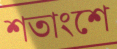
শতাংশে